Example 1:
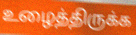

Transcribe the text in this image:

உழைத்திருக்க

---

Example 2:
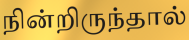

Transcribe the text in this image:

நின்றிருந்தால்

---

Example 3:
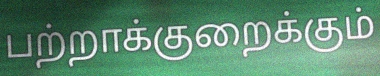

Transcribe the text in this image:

பற்றாக்குறைக்கும்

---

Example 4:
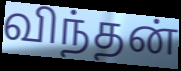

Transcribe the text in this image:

விந்தன்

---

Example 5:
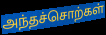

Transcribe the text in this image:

அந்தச்சொற்கள்